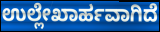
ಉಲ್ಲೇಖಾರ್ಹವಾಗಿದೆ